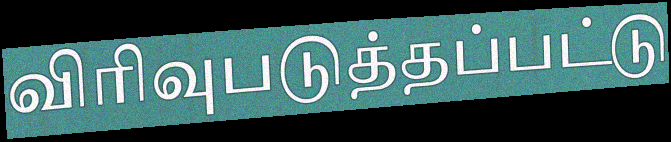
விரிவுபடுத்தப்பட்டு